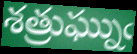
శత్రుఘ్నుఁ